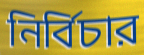
নির্বিচার